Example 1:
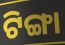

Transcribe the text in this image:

ଟିଙ୍ଗା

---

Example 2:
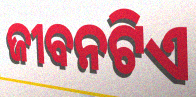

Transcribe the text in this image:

ଜୀବନଟିଏ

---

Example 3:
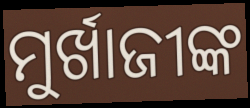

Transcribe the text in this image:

ମୁର୍ଖାଜୀଙ୍କ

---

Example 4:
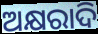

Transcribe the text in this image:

ଅକ୍ଷରାଦି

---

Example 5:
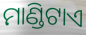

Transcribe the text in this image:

ମାଣ୍ଡିଟାଏ